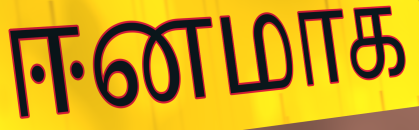
ஈனமாக